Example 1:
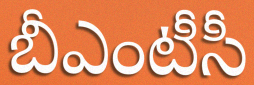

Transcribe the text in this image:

బీఎంటీసీ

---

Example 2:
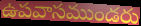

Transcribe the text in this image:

ఉపవాసముండరు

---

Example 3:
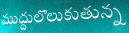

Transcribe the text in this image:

ముద్దులొలుకుతున్న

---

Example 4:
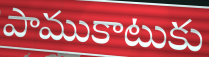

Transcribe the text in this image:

పాముకాటుకు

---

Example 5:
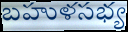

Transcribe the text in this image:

బహుళసభ్య